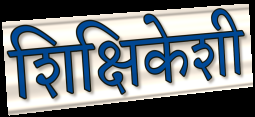
शिक्षिकेशी